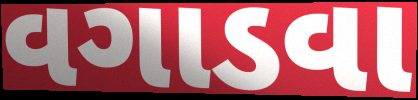
વગાડવા